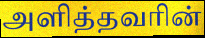
அளித்தவரின்